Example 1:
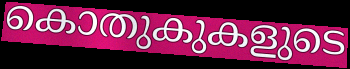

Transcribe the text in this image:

കൊതുകുകളുടെ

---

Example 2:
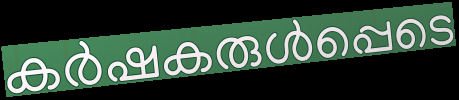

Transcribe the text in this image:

കർഷകരുൾപ്പെടെ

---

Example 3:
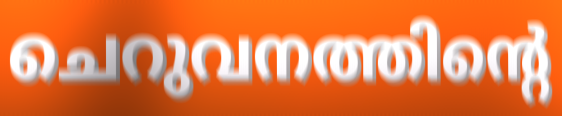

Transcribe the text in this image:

ചെറുവനത്തിന്റെ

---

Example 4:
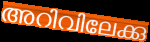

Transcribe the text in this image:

അറിവിലേക്കു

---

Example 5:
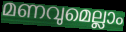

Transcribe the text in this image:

മണവുമെല്ലാം